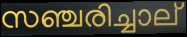
സഞ്ചരിച്ചാല്